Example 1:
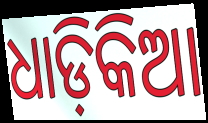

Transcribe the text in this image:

ଧାଡ଼ିକିଆ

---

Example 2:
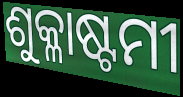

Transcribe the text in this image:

ଶୁକ୍ଳାଷ୍ଟମୀ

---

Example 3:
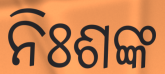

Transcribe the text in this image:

ନିଃଶଙ୍କ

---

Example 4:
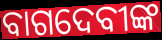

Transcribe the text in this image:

ବାଗଦେବୀଙ୍କ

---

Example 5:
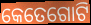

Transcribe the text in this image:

କେତେଗୋଟି